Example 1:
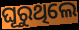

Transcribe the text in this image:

ଘୂରୁଥିଲେ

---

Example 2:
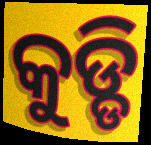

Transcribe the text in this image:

କୁଡ୍ଡି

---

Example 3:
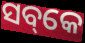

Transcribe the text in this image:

ସବ୍‌କେ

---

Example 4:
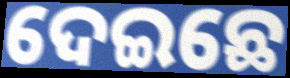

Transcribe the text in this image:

ଦେଇଛେ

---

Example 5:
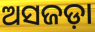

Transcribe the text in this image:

ଅସଜଡ଼ା